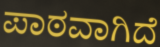
ಪಾಠವಾಗಿದೆ